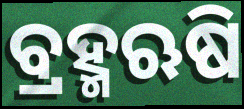
ବ୍ରହ୍ମଋଷି